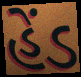
હેંડ